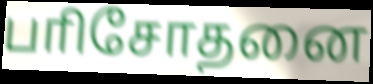
பரிசோதனை